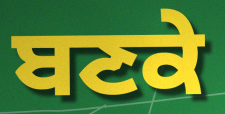
ਬਣਕੇ